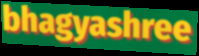
bhagyashree